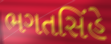
ભગતસિંહે